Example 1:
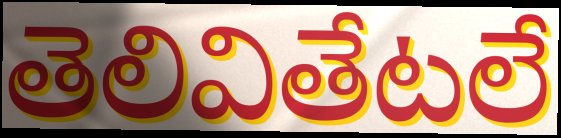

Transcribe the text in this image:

తెలివితేటలే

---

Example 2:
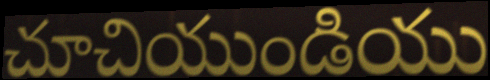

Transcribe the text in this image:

చూచియుండియు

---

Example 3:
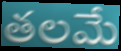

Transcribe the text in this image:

తలమే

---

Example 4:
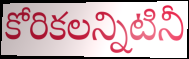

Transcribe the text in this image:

కోరికలన్నిటినీ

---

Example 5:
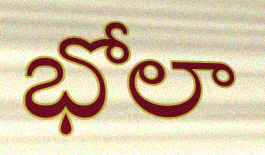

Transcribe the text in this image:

భోలా